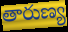
తారుణ్య